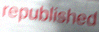
republished